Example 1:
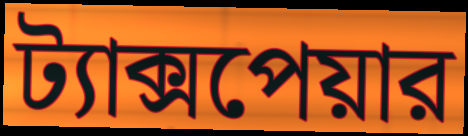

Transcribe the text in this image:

ট্যাক্সপেয়ার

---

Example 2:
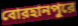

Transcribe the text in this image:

বোরহানপুরে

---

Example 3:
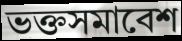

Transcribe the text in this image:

ভক্তসমাবেশ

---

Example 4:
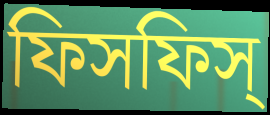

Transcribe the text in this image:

ফিসফিস্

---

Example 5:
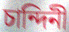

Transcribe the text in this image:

চান্দিনী